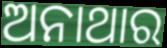
ଅନାଥାର